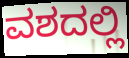
ವಶದಲ್ಲಿ